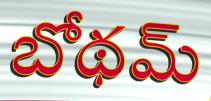
బోథమ్